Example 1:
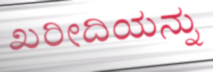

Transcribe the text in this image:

ಖರೀದಿಯನ್ನು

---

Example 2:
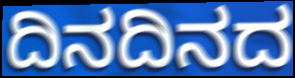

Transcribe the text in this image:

ದಿನದಿನದ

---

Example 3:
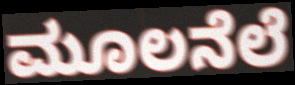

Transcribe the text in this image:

ಮೂಲನೆಲೆ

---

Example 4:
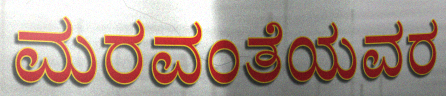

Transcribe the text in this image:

ಮರವಂತೆಯವರ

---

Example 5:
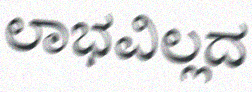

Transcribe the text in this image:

ಲಾಭವಿಲ್ಲದ